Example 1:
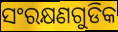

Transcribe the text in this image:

ସଂରକ୍ଷଣଗୁଡିକ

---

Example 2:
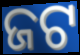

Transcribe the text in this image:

ଜଟ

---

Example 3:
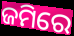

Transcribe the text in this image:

ଜମିରେ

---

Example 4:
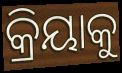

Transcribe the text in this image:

କ୍ରିୟାକୁ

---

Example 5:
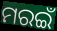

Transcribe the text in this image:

ମରଇଁ